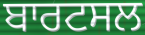
ਬਾਰਟਸਲ